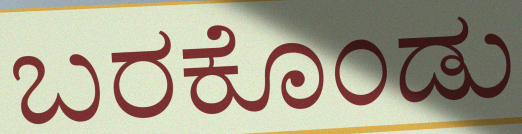
ಬರಕೊಂಡು